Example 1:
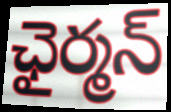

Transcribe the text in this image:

ఛైర్మన్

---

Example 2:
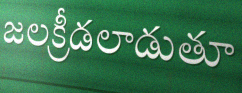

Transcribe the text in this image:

జలక్రీడలాడుతూ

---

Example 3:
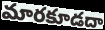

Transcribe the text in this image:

మారకూడదా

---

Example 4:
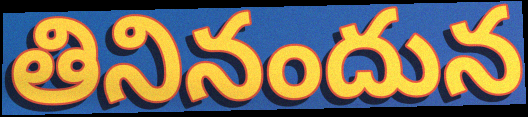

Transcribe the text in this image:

తినినందున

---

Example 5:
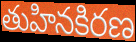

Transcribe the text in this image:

తుహినకిరణ